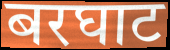
बरघाट